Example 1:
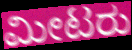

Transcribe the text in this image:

ಮೀಟರು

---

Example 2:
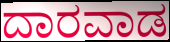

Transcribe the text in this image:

ದಾರವಾಡ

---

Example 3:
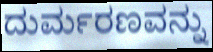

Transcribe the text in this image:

ದುರ್ಮರಣವನ್ನು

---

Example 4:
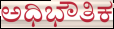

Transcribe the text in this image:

ಅಧಿಭೌತಿಕ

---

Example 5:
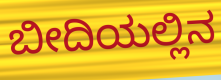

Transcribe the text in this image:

ಬೀದಿಯಲ್ಲಿನ